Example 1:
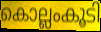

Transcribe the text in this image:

കൊല്ലംകൂടി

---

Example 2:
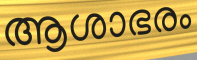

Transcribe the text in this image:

ആശാഭരം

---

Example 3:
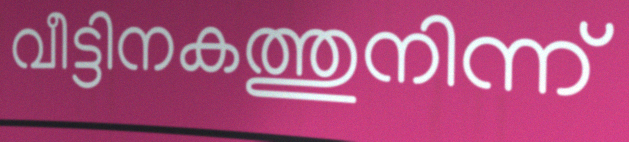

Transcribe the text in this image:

വീട്ടിനകത്തുനിന്ന്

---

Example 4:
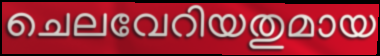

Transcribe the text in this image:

ചെലവേറിയതുമായ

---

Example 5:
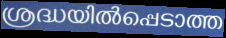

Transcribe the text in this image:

ശ്രദ്ധയിൽപ്പെടാത്ത